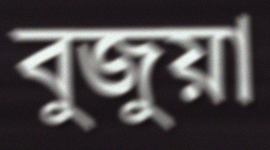
বুজুয়া